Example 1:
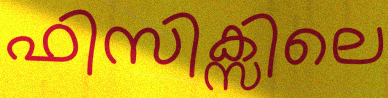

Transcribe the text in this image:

ഫിസിക്സിലെ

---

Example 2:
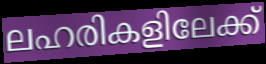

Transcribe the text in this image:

ലഹരികളിലേക്ക്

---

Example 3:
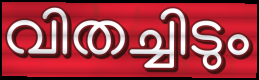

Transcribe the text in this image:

വിതച്ചിടും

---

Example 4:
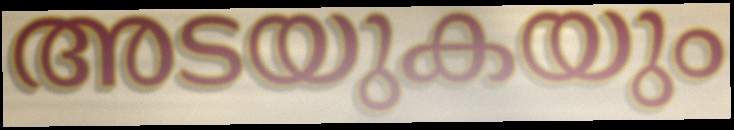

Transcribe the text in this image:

അടയുകയും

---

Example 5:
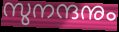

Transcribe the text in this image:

സുനന്ദനും